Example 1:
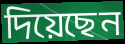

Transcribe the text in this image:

দিয়েছেন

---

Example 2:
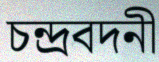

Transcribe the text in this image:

চন্দ্রবদনী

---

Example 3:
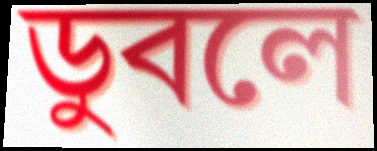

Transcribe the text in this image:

ডুবলে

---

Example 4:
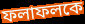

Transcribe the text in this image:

ফলাফলকে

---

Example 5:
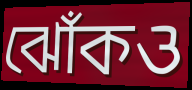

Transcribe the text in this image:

ঝোঁকও